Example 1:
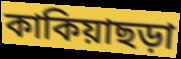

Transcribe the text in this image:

কাকিয়াছড়া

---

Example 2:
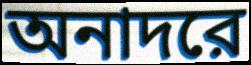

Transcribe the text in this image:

অনাদরে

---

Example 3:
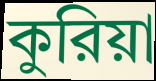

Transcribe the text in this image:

কুরিয়া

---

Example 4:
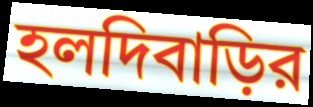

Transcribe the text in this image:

হলদিবাড়ির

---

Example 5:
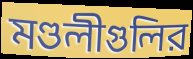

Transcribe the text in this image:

মণ্ডলীগুলির